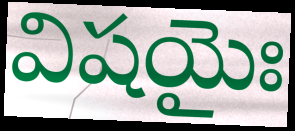
విషయైః